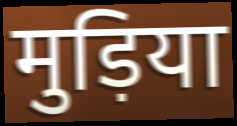
मुड़िया